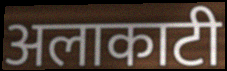
अलाकाटी